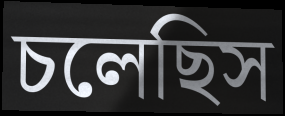
চলেছিস